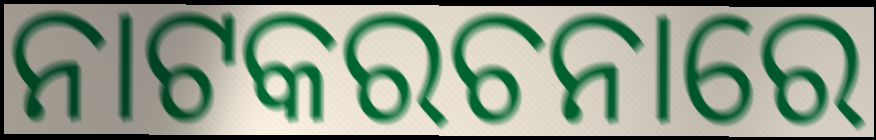
ନାଟକରଚନାରେ